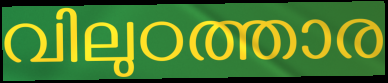
വിലുഠത്താര